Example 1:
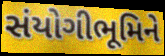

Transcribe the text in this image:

સંયોગીભૂમિને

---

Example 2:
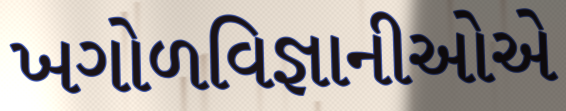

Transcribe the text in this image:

ખગોળવિજ્ઞાનીઓએ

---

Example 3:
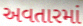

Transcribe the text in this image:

અવતારમાં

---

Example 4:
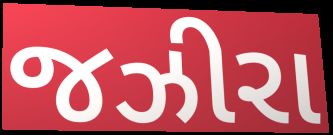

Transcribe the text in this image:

જઝીરા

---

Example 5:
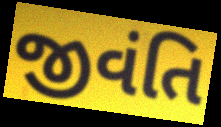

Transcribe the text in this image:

જીવંતિ